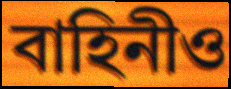
বাহিনীও